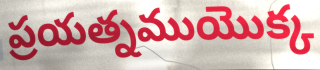
ప్రయత్నముయొక్క